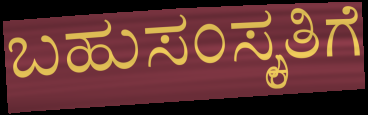
ಬಹುಸಂಸ್ಕೃತಿಗೆ